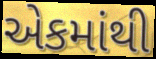
એકમાંથી